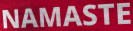
NAMASTE